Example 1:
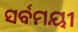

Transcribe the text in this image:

ସର୍ବମୟୀ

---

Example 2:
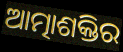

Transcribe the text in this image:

ଆତ୍ମାଶକ୍ତିର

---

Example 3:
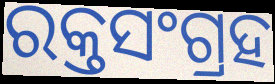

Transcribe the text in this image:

ରକ୍ତସଂଗ୍ରହ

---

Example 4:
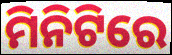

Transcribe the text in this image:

ମିନିଟିରେ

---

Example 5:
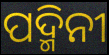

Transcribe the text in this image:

ପଦ୍ମିନୀ